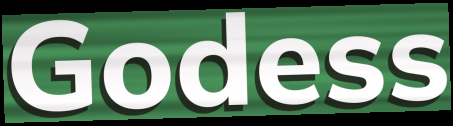
Godess